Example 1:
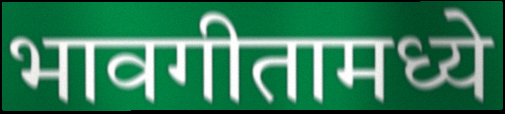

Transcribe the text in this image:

भावगीतामध्ये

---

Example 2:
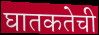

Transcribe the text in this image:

घातकतेची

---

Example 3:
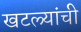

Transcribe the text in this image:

खटल्यांची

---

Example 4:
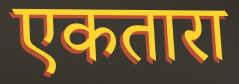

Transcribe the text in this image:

एकतारा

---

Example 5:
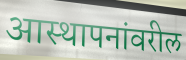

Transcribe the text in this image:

आस्थापनांवरील